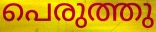
പെരുത്തു